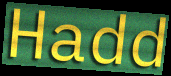
Hadd